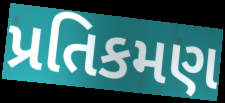
પ્રતિકમણ